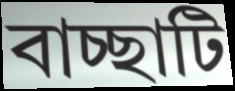
বাচ্ছাটি